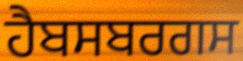
ਹੈਬਸਬਰਗਸ